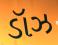
ડૉઝ